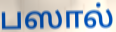
பஸால்